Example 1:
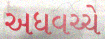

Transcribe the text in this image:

અધવચ્ચે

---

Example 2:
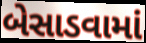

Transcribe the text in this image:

બેસાડવામાં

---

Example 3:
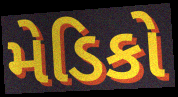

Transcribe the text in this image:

મેડિકો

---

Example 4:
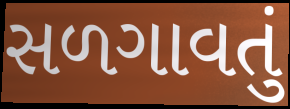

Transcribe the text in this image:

સળગાવતું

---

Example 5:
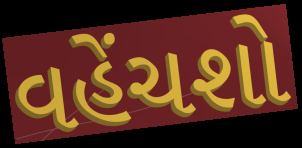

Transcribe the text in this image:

વહેંચશો